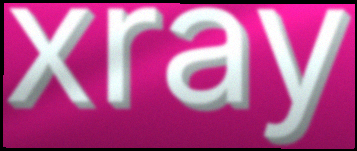
xray